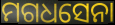
ମଗଧସେନା